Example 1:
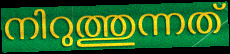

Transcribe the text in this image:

നിറുത്തുന്നത്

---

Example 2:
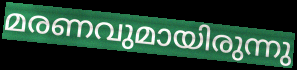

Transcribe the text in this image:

മരണവുമായിരുന്നു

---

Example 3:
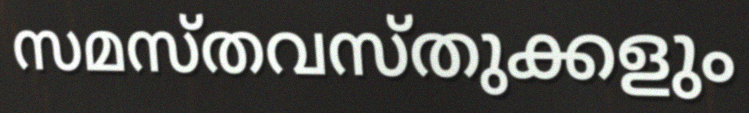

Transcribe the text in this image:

സമസ്തവസ്തുക്കളും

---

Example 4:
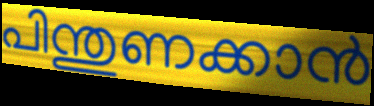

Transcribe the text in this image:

പിന്തുണക്കാൻ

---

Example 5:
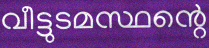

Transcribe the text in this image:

വീട്ടുടമസ്ഥന്റെ